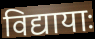
विद्यायाः